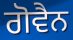
ਗੋਵੈਨ